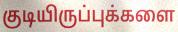
குடியிருப்புக்களை